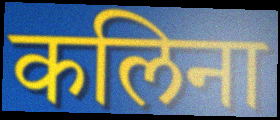
कलिना